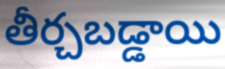
తీర్చబడ్డాయి